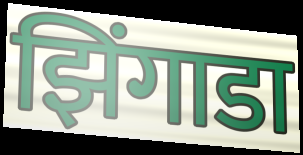
झिंगाडा